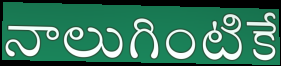
నాలుగింటికే